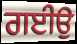
ਗਈਉ